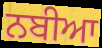
ਨਬੀਆ